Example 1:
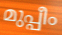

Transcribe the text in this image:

മുപ്പീം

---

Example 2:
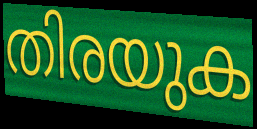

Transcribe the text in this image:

തിരയുക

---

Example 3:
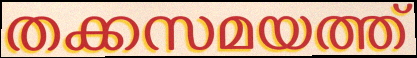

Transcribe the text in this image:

തക്കസമയത്ത്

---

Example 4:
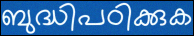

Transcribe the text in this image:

ബുദ്ധിപഠിക്കുക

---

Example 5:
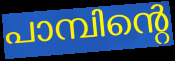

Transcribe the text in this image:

പാമ്പിന്റെ